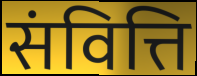
संवित्ति